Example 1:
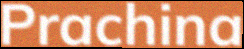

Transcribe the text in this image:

Prachina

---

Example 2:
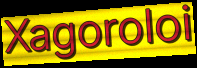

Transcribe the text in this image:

Xagoroloi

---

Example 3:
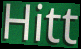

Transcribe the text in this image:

Hitt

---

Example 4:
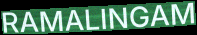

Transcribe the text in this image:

RAMALINGAM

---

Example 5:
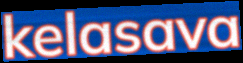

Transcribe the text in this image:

kelasava